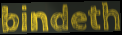
bindeth